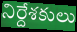
నిర్దేశకులు